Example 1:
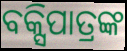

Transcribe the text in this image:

ବକ୍ସିପାତ୍ରଙ୍କ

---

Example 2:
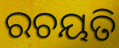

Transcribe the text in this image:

ରଚୟତି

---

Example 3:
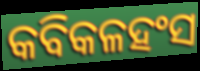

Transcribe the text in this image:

କବିକଳହଂସ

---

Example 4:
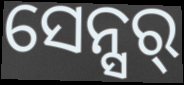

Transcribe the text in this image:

ସେନ୍ସର୍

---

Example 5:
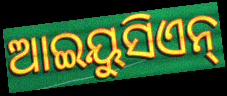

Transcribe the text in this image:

ଆଇୟୁସିଏନ୍